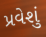
પ્રવેશું